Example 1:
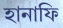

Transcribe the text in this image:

হানাফি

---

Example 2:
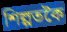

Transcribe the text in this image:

শিল্পতকৈ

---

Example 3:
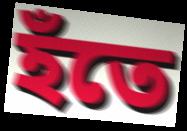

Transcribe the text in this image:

হঁতে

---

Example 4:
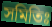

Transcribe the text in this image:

সমিতিঃ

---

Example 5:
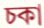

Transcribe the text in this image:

চকা